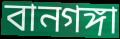
বানগঙ্গা